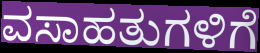
ವಸಾಹತುಗಳಿಗೆ